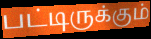
பட்டிருக்கும்